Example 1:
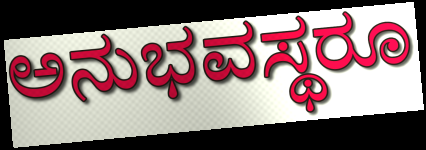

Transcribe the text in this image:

ಅನುಭವಸ್ಥರೂ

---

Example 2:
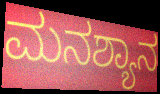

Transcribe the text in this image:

ಮನಶ್ಯಾನ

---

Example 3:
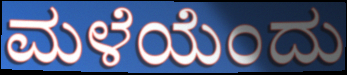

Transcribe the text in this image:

ಮಳೆಯೆಂದು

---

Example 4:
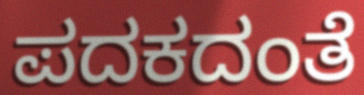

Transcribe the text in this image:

ಪದಕದಂತೆ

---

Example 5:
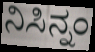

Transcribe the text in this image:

ನಿಸಿನ್ನಂ